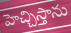
హెచ్చిస్తాను